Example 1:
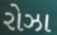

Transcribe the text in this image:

રોઝા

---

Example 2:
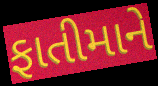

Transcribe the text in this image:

ફાતીમાને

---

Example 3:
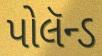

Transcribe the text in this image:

પોલૅન્ડ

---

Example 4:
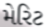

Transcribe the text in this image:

મેરિટ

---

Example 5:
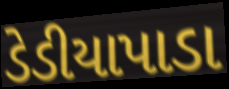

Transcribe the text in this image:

ડેડીયાપાડા